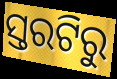
ସ୍ତରଟିରୁ